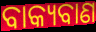
ବାକ୍ୟବାଣ